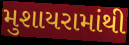
મુશાયરામાંથી